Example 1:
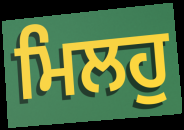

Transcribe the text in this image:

ਮਿਲਹੁ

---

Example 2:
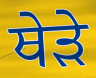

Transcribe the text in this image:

ਥੇੜੇ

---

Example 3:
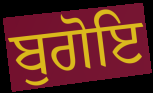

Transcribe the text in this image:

ਬੁਗੋਇ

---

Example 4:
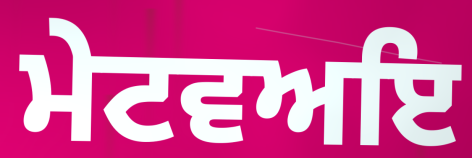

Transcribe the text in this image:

ਮੇਟਵਅਇ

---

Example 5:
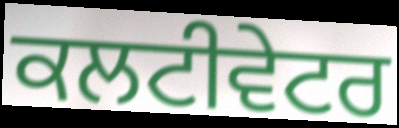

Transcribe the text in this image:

ਕਲਟੀਵੇਟਰ